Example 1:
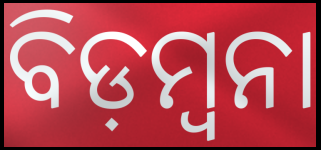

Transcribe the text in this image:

ବିଡ଼ମ୍ୱନା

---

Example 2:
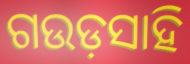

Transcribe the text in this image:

ଗଉଡ଼ସାହି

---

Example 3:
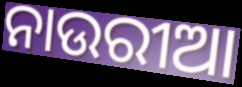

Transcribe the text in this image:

ନାଉରୀଆ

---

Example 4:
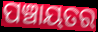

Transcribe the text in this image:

ପଞ୍ଚାୟତର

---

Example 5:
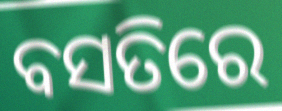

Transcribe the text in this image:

ବସତିରେ